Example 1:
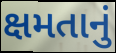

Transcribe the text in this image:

ક્ષમતાનું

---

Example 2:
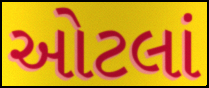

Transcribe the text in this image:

ઓટલાં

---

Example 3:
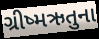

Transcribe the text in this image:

ગ્રીષ્મઋતુના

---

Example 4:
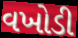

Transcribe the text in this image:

વખોડી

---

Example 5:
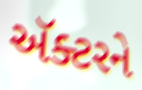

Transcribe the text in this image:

ઍક્ટરને